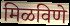
मिळविणे